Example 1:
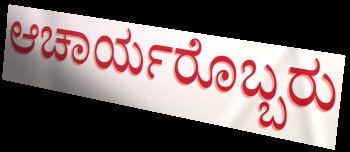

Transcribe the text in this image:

ಆಚಾರ್ಯರೊಬ್ಬರು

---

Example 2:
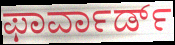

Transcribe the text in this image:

ಫಾರ್ವಾರ್ಡ್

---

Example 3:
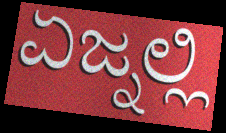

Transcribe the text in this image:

ಏಜ್ನಲ್ಲಿ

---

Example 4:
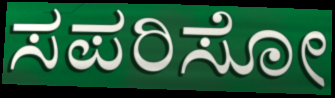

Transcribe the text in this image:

ಸಪರಿಸೋ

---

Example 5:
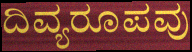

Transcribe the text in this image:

ದಿವ್ಯರೂಪವು